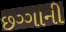
છગ્ગાની